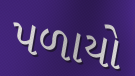
પળાયો